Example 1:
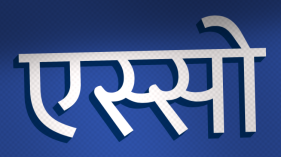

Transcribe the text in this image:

एस्सो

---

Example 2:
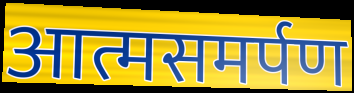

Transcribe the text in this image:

आत्‍मसमर्पण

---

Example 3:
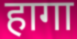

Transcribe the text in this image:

हागा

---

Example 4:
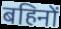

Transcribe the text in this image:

बहिनों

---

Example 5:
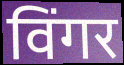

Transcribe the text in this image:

विंगर